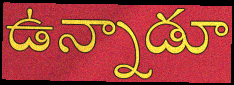
ఉన్నాడూ